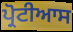
ਪ੍ਰੋਟੀਆਸ